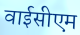
वाईसीएम